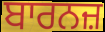
ਬਾਰਨਜ਼